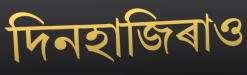
দিনহাজিৰাও